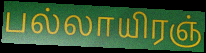
பல்லாயிரஞ்